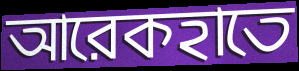
আরেকহাতে